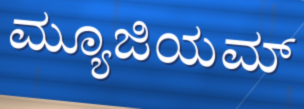
ಮ್ಯೂಜಿಯಮ್